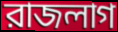
রাজলাগ